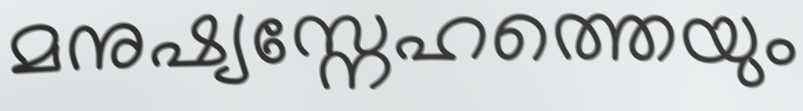
മനുഷ്യസ്നേഹത്തെയും